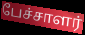
பேச்சாளர்